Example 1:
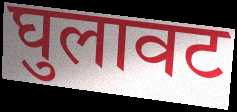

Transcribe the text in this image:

घुलावट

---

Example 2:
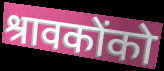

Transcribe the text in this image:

श्रावकोंको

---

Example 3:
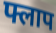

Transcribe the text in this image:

फ्लाप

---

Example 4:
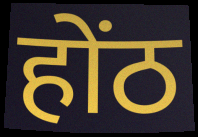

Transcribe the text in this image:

होंठ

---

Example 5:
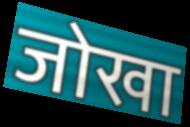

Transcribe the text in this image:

जोखा